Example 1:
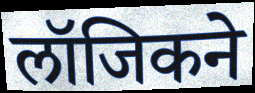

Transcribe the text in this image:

लॉजिकने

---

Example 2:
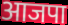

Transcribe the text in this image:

आजपा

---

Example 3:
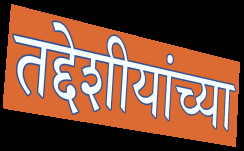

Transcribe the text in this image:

तद्देशीयांच्या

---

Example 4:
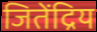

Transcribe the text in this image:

जितेंद्रिय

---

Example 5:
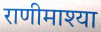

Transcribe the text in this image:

राणीमाश्या